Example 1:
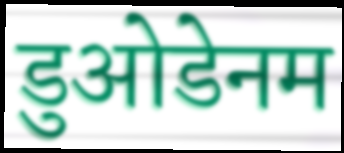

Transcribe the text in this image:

डुओडेनम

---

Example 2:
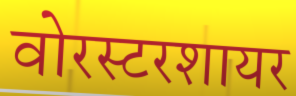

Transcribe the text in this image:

वोरस्टरशायर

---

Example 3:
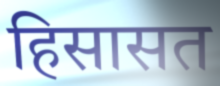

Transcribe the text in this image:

हिसासत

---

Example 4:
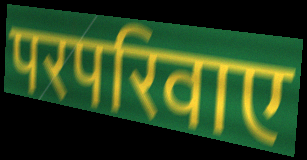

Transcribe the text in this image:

परपरिवाए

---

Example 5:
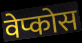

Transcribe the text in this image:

वेप्कोस